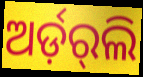
ଅର୍ଡ଼ର୍‌ଲି